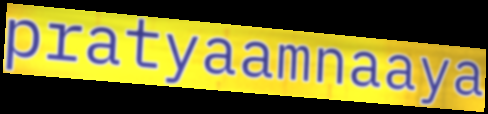
pratyaamnaaya